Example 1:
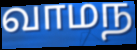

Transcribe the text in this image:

வாமந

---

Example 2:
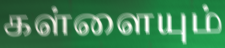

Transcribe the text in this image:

கள்ளையும்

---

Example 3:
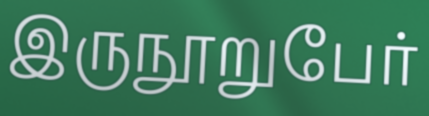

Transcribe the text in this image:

இருநூறுபேர்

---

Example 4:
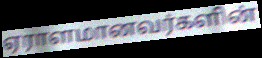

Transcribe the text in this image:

ஏராளமானவர்களின்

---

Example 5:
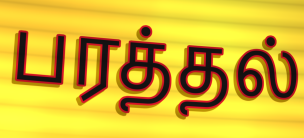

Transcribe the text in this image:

பரத்தல்